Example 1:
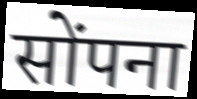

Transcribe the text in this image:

सोंपना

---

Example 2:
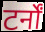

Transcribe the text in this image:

टर्नों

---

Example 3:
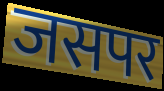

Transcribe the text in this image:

जसपर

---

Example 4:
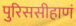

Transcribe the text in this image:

पुरिससीहाणं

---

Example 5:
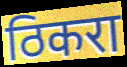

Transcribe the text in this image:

ठिकरा